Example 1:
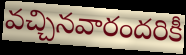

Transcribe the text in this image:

వచ్చినవారందరికీ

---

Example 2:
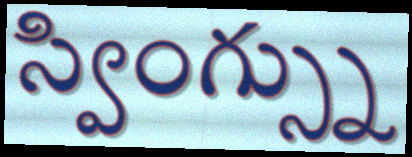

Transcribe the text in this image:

స్వింగ్స్ను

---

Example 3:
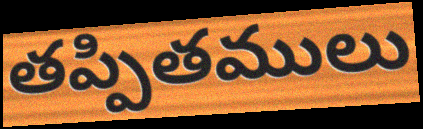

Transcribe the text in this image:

తప్పితములు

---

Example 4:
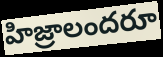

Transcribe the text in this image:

హిజ్రాలందరూ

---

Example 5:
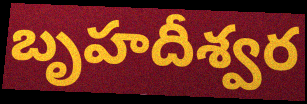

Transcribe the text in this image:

బృహదీశ్వర